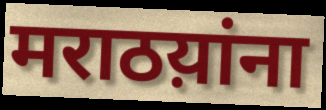
मराठय़ांना